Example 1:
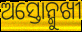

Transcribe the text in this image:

ଅସ୍ତୋନ୍ମୁଖୀ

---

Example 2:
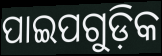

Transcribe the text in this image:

ପାଇପଗୁଡ଼ିକ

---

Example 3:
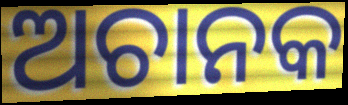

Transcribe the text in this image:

ଅଚାନକ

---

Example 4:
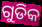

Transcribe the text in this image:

ଗୁଡିକ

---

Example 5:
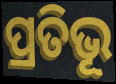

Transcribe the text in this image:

ପ୍ରତିଭୂ